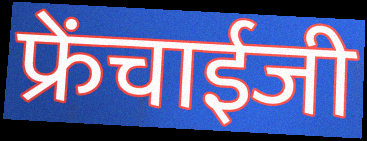
फ्रेंचाईजी